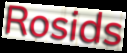
Rosids